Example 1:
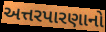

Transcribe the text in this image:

અત્તરપારણાનો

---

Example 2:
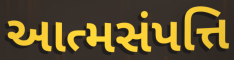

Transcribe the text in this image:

આત્મસંપત્તિ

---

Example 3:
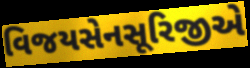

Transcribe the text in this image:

વિજયસેનસૂરિજીએ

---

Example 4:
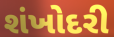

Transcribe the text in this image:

શંખોદરી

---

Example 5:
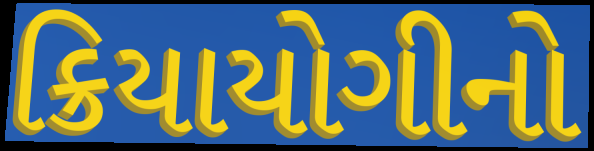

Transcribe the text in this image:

ક્રિયાયોગીનો